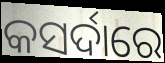
କସର୍ଦାରେ